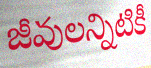
జీవులన్నిటికీ